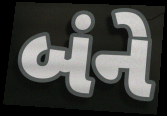
બંને